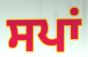
ਸਪਾਂ